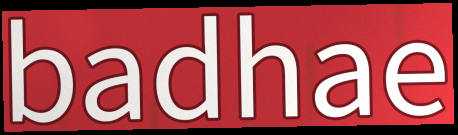
badhae